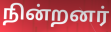
நின்றனர்